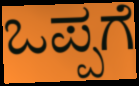
ಒಪ್ಪಗೆ